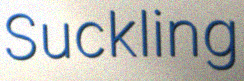
Suckling